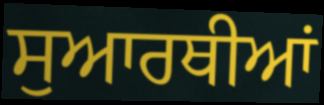
ਸੁਆਰਥੀਆਂ